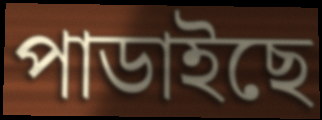
পাডাইছে